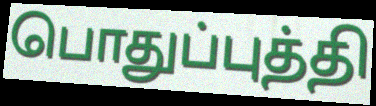
பொதுப்புத்தி